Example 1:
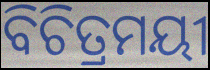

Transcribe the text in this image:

ବିଚିତ୍ରମୟୀ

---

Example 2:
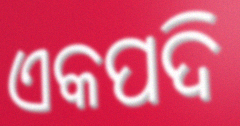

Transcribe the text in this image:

ଏକପଦି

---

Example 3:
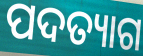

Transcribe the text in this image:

ପଦତ୍ୟାଗ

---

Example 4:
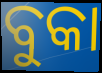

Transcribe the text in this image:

ବୁକା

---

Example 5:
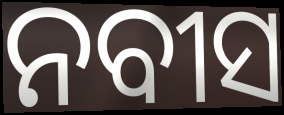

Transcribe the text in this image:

ନବୀସ